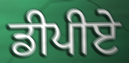
ਡੀਪੀਏ